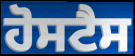
ਹੋਸਟੈਸ